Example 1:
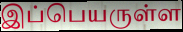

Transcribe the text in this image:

இப்பெயருள்ள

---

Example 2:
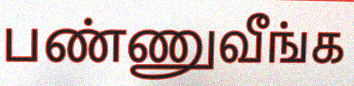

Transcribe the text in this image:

பண்ணுவீங்க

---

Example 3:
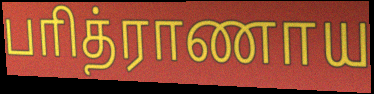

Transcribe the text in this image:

பரித்ராணாய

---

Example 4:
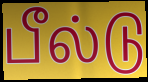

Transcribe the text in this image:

பீல்டு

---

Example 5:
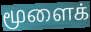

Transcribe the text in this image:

மூளைக்